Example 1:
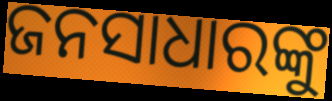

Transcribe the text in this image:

ଜନସାଧାରଙ୍କୁ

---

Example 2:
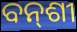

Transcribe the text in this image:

ବନ୍‌ଶୀ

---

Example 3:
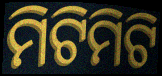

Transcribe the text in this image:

ମିଟିମିଟି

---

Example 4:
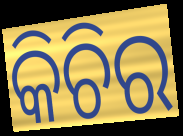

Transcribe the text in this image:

କିଚିର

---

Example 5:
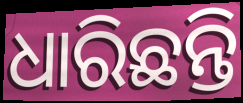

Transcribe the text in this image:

ଧାରିଛନ୍ତି